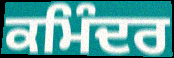
ਕਮਿੰਦਰ